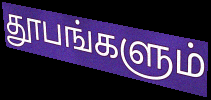
தூபங்களும்